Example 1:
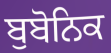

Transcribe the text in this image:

ਬੁਬੋਨਿਕ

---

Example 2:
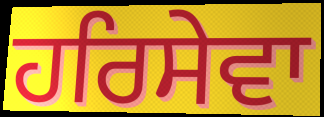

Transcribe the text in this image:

ਹਰਿਸੇਵਾ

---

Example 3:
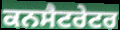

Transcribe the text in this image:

ਕਨਸੈਟਰੇਟਰ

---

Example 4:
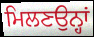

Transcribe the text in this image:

ਮਿਲਣਉਨ੍ਹਾਂ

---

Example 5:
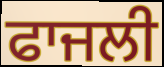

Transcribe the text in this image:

ਫਾਜਲੀ